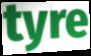
tyre